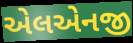
એલએનજી